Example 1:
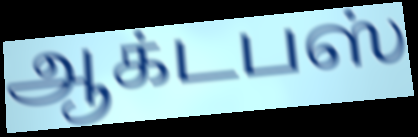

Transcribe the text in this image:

ஆக்டபஸ்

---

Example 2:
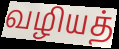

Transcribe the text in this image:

வழியத்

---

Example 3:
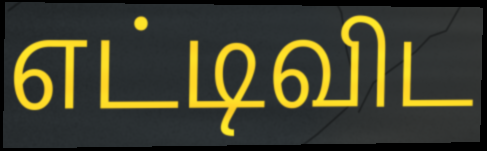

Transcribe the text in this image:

எட்டிவிட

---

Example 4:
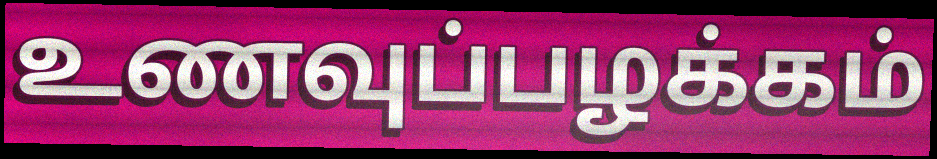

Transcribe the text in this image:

உணவுப்பழக்கம்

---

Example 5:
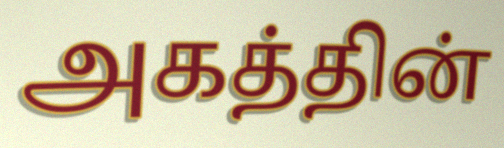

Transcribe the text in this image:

அகத்தின்